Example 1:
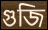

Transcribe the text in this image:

গুজি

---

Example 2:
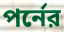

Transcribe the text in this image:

পর্নের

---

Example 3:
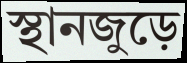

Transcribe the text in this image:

স্থানজুড়ে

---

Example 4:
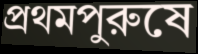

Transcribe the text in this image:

প্রথমপুরুষে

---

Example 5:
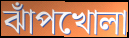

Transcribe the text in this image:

ঝাঁপখোলা